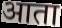
आता